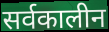
सर्वकालीन